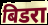
बिडरा